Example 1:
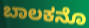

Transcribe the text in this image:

ಬಾಲಕನೊ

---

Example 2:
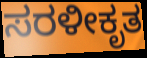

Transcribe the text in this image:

ಸರಳೀಕೃತ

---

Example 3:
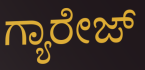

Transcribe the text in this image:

ಗ್ಯಾರೇಜ್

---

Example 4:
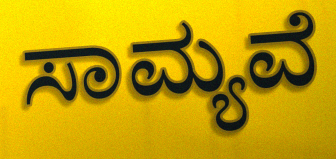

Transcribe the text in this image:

ಸಾಮ್ಯವೆ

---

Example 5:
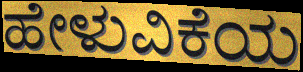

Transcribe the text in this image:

ಹೇಳುವಿಕೆಯ